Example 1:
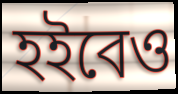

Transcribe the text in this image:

হইবেও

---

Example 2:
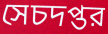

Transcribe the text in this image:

সেচদপ্তর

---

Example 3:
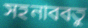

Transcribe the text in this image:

সহনাববতু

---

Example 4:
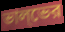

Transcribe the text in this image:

ভাল্ভের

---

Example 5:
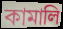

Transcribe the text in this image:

কামালি